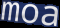
moa